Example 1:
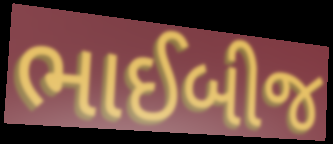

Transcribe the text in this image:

ભાઈબીજ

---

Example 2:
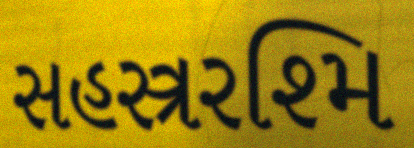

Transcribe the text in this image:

સહસ્ત્રરશ્મિ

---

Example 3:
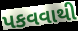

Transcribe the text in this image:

પકવવાથી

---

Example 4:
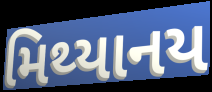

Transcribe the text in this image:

મિથ્યાનય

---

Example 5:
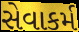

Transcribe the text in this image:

સેવાકર્મ